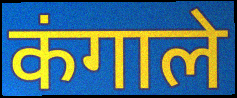
कंगाले